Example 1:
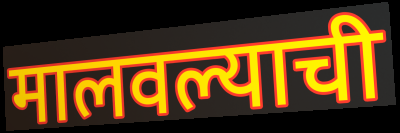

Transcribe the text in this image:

मालवल्याची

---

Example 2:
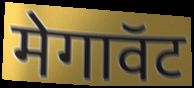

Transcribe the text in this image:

मेगावॅट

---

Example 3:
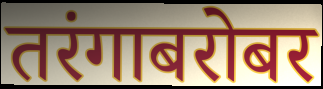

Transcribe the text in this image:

तरंगाबरोबर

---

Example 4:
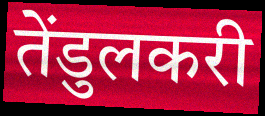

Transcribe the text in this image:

तेंडुलकरी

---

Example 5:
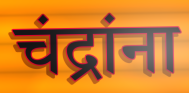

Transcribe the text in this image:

चंद्रांना